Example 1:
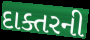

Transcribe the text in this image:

દાક્તરની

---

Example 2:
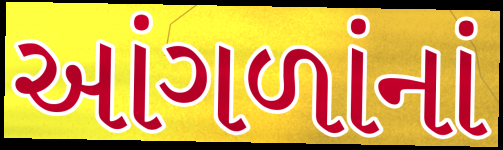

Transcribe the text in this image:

આંગળાંનાં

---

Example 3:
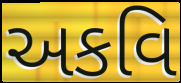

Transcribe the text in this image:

અકવિ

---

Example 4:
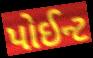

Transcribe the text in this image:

પોઈન્ટ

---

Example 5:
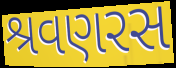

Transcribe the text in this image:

શ્રવણરસ